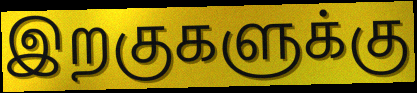
இறகுகளுக்கு